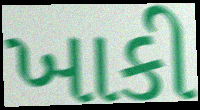
ખાકી